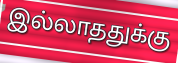
இல்லாததுக்கு